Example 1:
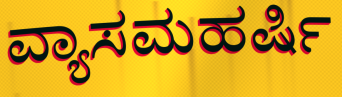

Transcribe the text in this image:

ವ್ಯಾಸಮಹರ್ಷಿ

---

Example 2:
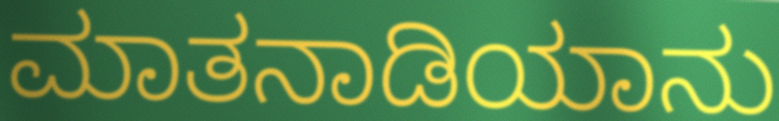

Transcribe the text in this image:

ಮಾತನಾಡಿಯಾನು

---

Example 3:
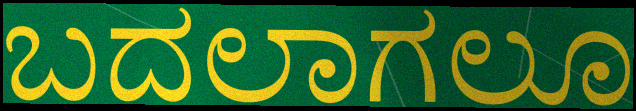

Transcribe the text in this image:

ಬದಲಾಗಲೂ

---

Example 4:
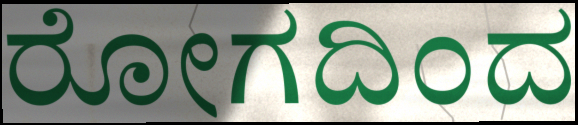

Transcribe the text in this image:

ರೋಗದಿಂದ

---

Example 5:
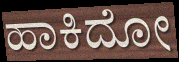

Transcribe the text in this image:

ಹಾಕಿದೋ